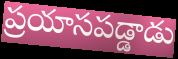
ప్రయాసపడ్డాడు